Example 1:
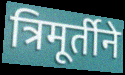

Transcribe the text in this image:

त्रिमूर्तीने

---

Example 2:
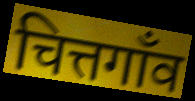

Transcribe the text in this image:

चित्तगाँव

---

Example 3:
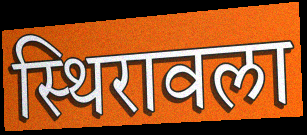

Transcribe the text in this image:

स्थिरावला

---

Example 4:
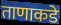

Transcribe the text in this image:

ताणाकडे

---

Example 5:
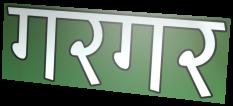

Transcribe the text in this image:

गरगर